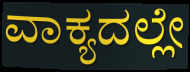
ವಾಕ್ಯದಲ್ಲೇ